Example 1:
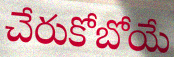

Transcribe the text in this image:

చేరుకోబోయే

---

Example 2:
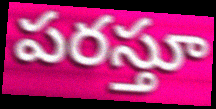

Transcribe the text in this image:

పరస్తూ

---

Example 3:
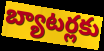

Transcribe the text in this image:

బ్యాటర్లకు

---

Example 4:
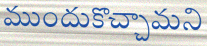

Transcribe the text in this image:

ముందుకొచ్చామని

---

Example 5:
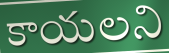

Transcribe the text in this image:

కాయలని